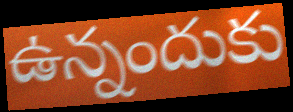
ఉన్నందుకు